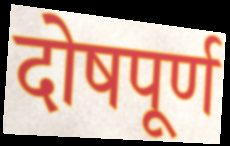
दोषपूर्ण